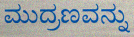
ಮುದ್ರಣವನ್ನು